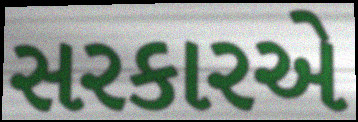
સરકારએ